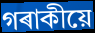
গৰাকীয়ে